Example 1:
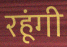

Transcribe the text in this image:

रहूंगी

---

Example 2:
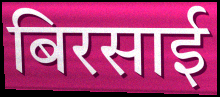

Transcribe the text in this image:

बिरसाई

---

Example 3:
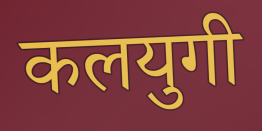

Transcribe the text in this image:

कलयुगी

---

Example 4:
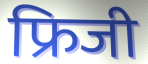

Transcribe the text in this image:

फ्रिजी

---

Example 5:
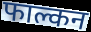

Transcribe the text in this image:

फाल्कन